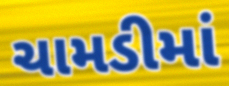
ચામડીમાં